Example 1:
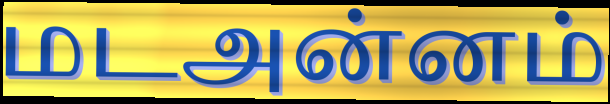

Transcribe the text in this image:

மடஅன்னம்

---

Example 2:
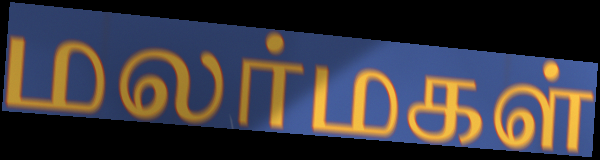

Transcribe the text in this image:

மலர்மகள்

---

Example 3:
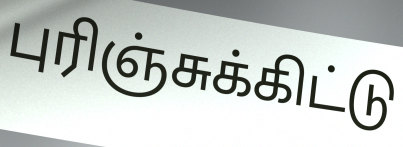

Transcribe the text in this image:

புரிஞ்சுக்கிட்டு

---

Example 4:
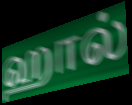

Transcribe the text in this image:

ஹால்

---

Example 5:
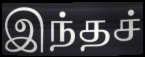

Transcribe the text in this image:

இந்தச்